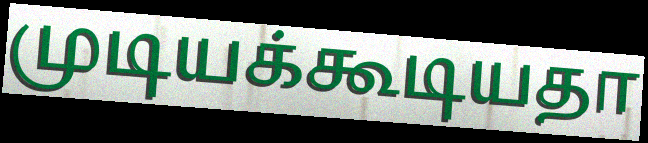
முடியக்கூடியதா